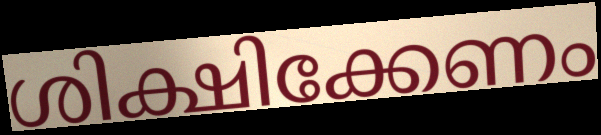
ശിക്ഷിക്കേണം